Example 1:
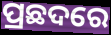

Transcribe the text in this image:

ପ୍ରଛଦରେ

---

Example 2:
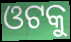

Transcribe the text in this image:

ଓଟକୁ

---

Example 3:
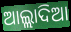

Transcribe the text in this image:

ଆଲ୍ଲାଦିଆ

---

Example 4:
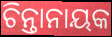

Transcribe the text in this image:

ଚିନ୍ତାନାୟକ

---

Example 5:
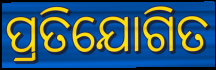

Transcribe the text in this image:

ପ୍ରତିଯୋଗିତ